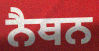
ਨੈਥਨ